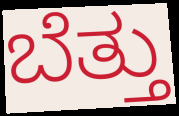
ಬೆತ್ತು